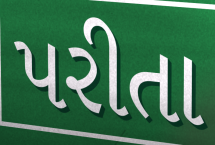
પરીતા